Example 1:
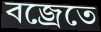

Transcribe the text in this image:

বজ্রেতে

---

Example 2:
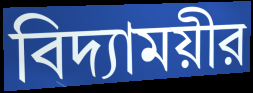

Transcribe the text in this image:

বিদ্যাময়ীর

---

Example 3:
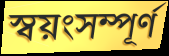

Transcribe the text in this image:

স্বয়ংসম্পূর্ণ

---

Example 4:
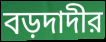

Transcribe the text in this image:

বড়দাদীর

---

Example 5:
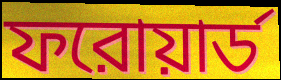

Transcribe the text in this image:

ফরোয়ার্ড